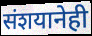
संशयानेही